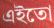
এইতো